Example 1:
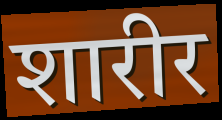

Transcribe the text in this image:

शारीर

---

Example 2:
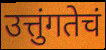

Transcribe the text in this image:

उत्तुंगतेचं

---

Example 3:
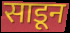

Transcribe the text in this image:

साडून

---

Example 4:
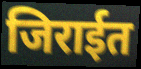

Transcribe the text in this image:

जिराईत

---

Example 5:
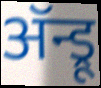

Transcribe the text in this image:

ॲन्ड्रू